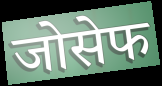
जोसेफ